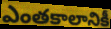
ఎంతకాలానికీ